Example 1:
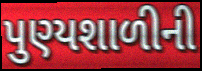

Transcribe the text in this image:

પુણ્યશાળીની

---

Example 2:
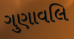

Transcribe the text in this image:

ગુણાવલિ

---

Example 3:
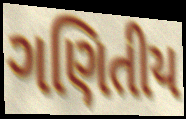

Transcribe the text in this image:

ગણિતીય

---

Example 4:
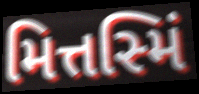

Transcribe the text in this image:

મિત્તસ્મિં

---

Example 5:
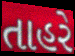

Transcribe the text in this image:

તાહરે